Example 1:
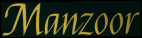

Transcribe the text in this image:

Manzoor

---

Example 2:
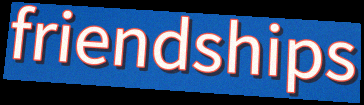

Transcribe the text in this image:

friendships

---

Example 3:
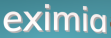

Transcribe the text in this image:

eximia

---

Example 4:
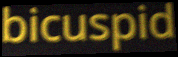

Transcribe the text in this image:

bicuspid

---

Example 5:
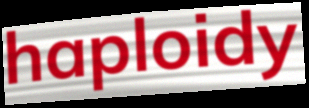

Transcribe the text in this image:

haploidy